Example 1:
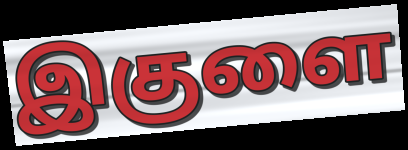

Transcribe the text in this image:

இகுளை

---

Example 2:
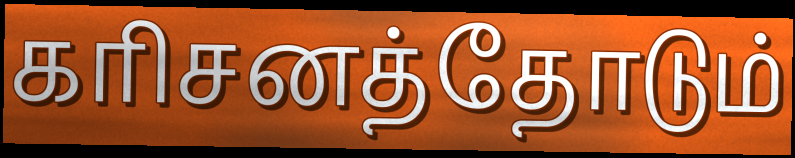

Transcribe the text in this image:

கரிசனத்தோடும்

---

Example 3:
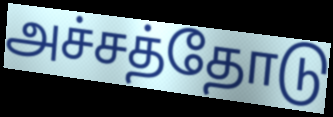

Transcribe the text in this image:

அச்சத்தோடு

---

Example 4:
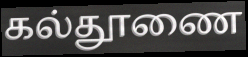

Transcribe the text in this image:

கல்தூணை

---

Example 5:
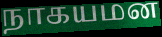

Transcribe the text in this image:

நாகயமன